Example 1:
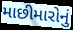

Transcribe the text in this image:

માછીમારોનું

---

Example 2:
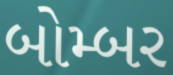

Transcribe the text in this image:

બોમ્બર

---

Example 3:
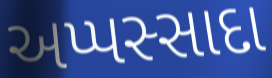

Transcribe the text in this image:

અપ્પસ્સાદા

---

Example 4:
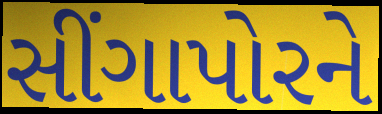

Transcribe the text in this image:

સીંગાપોરને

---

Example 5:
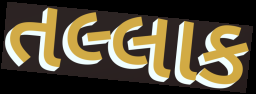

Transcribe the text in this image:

તલ્લાક